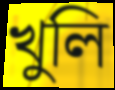
খুলি